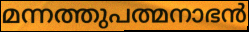
മന്നത്തുപത്മനാഭൻ